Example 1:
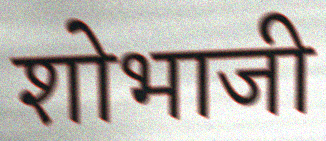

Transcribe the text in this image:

शोभाजी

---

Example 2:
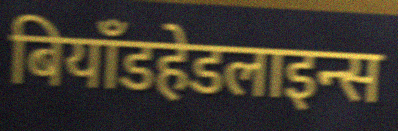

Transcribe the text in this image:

बियॉंडहेडलाइन्स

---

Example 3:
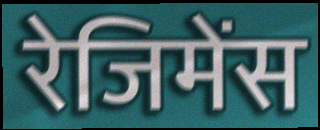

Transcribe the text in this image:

रेजिमेंस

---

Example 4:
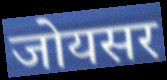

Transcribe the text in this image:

जोयसर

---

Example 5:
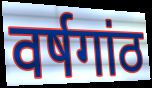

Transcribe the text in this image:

वर्षगांठ